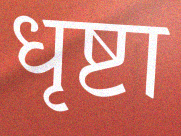
धृष्टा